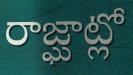
రాజ్ఘాట్లో